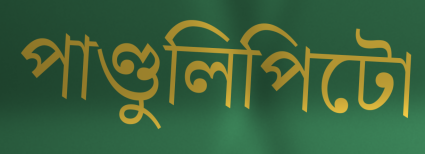
পাণ্ডুলিপিটো